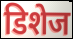
डिशेज